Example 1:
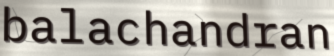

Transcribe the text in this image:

balachandran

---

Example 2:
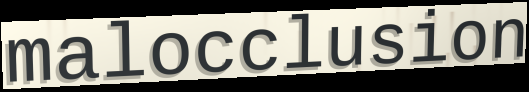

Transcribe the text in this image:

malocclusion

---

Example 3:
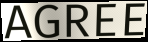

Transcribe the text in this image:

AGREE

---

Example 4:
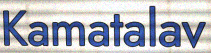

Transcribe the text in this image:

Kamatalav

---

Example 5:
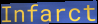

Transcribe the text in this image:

Infarct